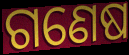
ଗଣେଷ